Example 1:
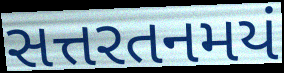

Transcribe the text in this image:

સત્તરતનમયં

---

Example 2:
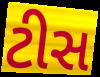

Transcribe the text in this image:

ટીસ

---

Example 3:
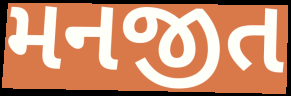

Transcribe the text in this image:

મનજીત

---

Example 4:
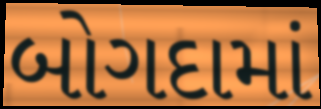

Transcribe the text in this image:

બોગદામાં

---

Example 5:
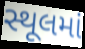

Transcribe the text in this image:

સ્થૂલમાં